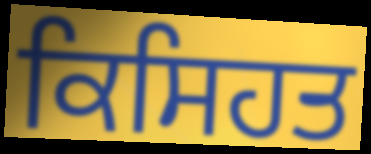
ਕਿਸਿਹਤ